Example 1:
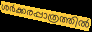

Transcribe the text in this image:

ശർക്കരപ്പാത്രത്തിൽ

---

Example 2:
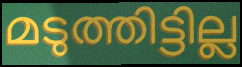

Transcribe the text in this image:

മടുത്തിട്ടില്ല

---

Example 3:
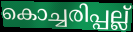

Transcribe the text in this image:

കൊച്ചരിപ്പല്ല്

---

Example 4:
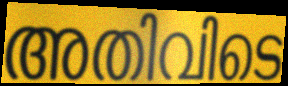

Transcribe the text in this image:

അതിവിടെ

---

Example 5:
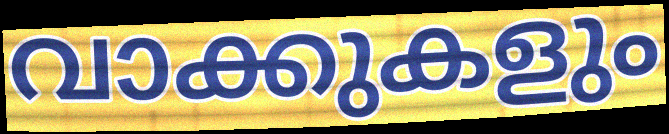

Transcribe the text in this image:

വാക്കുകളും